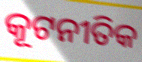
କୂଟନୀତିକ